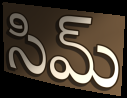
సిమ్